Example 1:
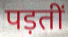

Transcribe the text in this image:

पड़तीं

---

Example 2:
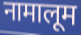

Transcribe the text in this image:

नामालूम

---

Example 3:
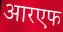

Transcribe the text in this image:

आरएफ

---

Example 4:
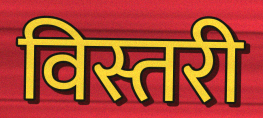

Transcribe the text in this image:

विस्तरी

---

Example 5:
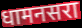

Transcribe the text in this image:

धामनसरा